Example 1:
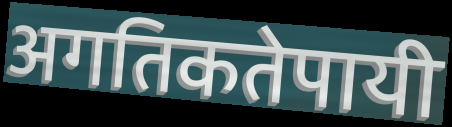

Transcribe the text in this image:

अगतिकतेपायी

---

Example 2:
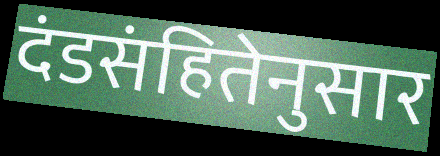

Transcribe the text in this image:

दंडसंहितेनुसार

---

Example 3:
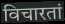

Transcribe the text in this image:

विचारतां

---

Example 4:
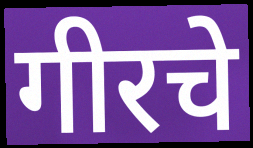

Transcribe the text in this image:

गीरचे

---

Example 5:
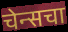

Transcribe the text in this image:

चेन्सचा